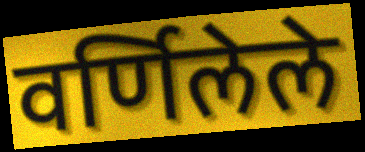
वर्णिलेले